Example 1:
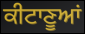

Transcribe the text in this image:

ਕੀਟਾਣੂਆਂ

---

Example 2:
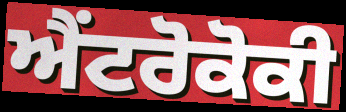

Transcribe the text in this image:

ਐਂਟਰੋਕੋਕੀ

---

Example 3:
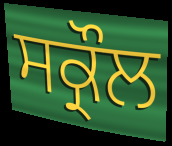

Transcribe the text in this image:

ਸਕ੍ਰੌਲ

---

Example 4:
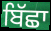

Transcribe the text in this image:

ਬਿੱਛਾ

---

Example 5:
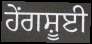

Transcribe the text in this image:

ਹੇਂਗਸ਼ੂਈ